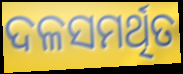
ଦଳସମର୍ଥିତ